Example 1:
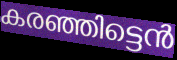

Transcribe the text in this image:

കരഞ്ഞിട്ടെൻ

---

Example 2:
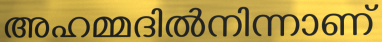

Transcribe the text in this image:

അഹമ്മദിൽനിന്നാണ്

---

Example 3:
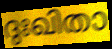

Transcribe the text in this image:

ദുഃഖിതാ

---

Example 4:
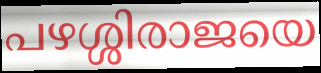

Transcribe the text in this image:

പഴശ്ശിരാജയെ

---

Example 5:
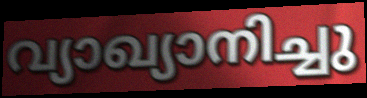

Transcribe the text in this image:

വ്യാഖ്യാനിച്ചു